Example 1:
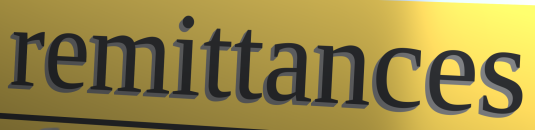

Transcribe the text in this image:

remittances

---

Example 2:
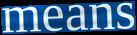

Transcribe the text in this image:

means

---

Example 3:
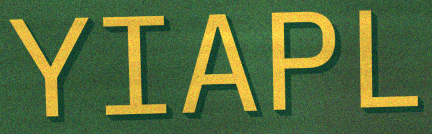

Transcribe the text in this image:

YIAPL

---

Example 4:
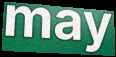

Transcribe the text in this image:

may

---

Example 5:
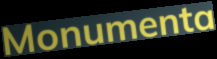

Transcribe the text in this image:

Monumenta